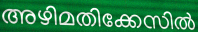
അഴിമതിക്കേസിൽ